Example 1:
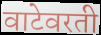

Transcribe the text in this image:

वाटेवरती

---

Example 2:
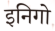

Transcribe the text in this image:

इनिगो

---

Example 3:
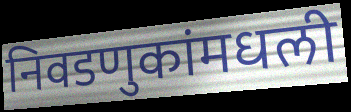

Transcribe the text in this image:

निवडणुकांमधली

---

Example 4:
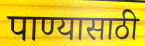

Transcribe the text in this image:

पाण्यासाठी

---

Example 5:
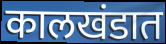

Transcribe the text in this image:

कालखंडात